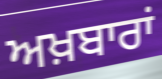
ਅਖ਼ਬਾਰਾਂ